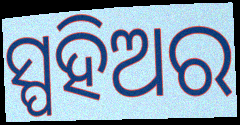
ସ୍ପହିଅର